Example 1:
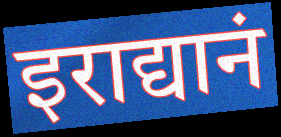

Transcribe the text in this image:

इराद्यानं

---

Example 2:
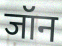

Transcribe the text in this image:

जॉन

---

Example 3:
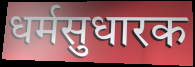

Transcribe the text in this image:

धर्मसुधारक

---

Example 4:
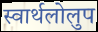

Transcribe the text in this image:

स्वार्थलोलुप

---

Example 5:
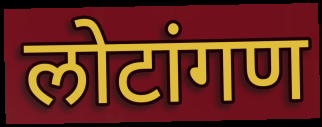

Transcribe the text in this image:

लोटांगण